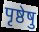
पृष्ठेषु